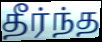
தீர்ந்த